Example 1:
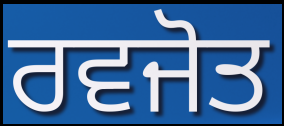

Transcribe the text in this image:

ਰਵਜੋਤ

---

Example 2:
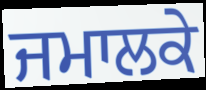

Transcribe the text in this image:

ਜਮਾਲਕੇ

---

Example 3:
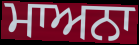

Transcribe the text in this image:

ਮਾਅਨਾ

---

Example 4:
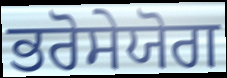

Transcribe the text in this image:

ਭਰੋਸੇਯੋਗ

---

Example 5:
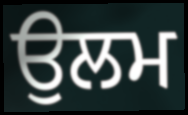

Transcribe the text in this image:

ਉਲਮ